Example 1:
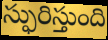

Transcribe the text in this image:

స్ఫురిస్తుంది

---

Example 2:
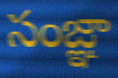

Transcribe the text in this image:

సంజ్ఞా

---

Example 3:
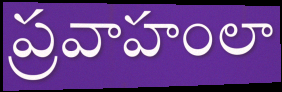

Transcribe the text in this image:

ప్రవాహంలా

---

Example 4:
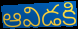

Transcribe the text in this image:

ఆవిడకి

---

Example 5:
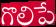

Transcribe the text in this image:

గొలిపే